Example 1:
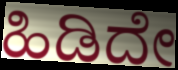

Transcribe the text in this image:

ಹಿಡಿದೇ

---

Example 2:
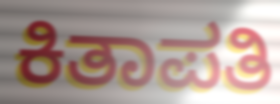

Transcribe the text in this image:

ಕಿತಾಪತಿ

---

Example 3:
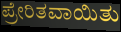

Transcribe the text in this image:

ಪ್ರೇರಿತವಾಯಿತು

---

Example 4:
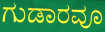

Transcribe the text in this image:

ಗುಡಾರವೂ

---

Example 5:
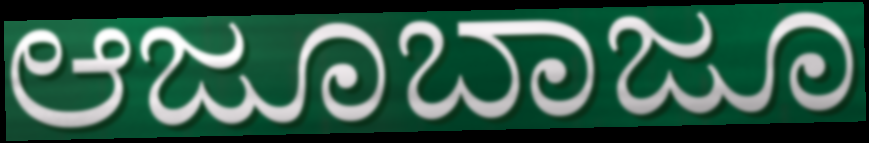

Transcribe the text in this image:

ಆಜೂಬಾಜೂ